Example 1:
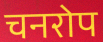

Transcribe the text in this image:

चनरोप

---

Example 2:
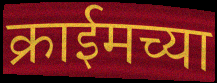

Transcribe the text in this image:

क्राईमच्या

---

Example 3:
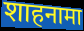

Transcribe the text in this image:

शाहनामा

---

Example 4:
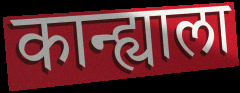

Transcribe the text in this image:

कान्ह्याला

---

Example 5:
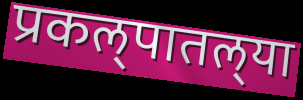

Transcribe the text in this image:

प्रकल्पातल्या